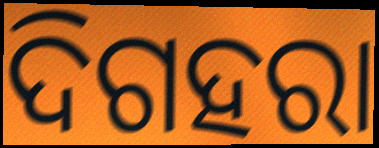
ଦିଗହରା